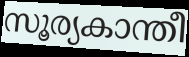
സൂര്യകാന്തീ